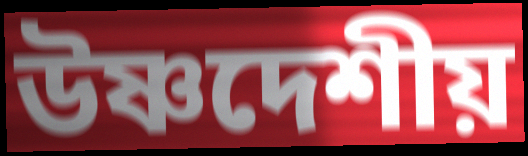
উষ্ণদেশীয়